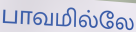
பாவமில்லே